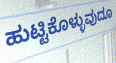
ಹುಟ್ಟಿಕೊಳ್ಳುವುದೂ